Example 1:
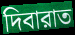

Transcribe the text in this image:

দিবারাত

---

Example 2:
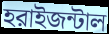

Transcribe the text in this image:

হরাইজন্টাল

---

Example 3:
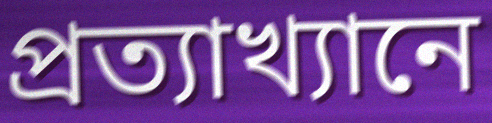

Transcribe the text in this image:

প্রত্যাখ্যানে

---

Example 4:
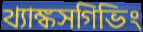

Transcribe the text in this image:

থ্যাঙ্কসগিভিং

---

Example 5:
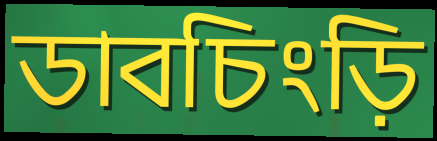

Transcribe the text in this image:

ডাবচিংড়ি